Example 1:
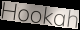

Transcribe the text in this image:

Hookah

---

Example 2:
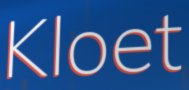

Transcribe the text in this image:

Kloet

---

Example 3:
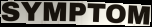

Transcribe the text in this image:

SYMPTOM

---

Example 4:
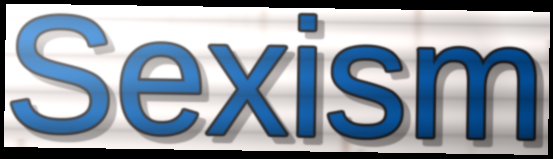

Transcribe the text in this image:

Sexism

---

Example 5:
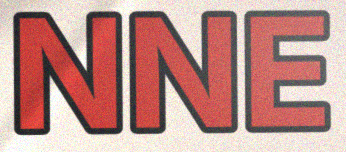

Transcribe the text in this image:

NNE